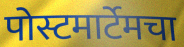
पोस्टमार्टेमचा